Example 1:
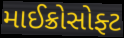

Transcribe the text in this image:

માઈક્રોસોફ્ટ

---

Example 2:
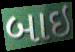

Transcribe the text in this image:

બાઇ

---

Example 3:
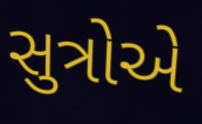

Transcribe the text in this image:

સુત્રોએ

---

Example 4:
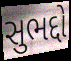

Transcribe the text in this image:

સુભદ્દો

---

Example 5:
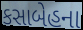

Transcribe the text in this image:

કસાબેહના